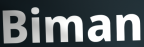
Biman